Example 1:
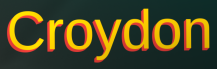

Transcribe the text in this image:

Croydon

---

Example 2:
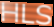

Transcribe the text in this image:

HLS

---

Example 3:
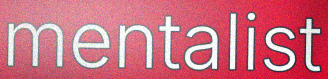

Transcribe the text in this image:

mentalist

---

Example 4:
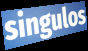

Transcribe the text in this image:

singulos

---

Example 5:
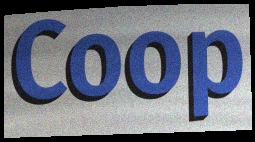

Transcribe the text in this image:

Coop